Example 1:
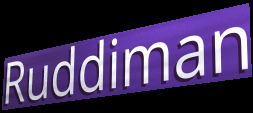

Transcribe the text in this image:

Ruddiman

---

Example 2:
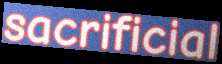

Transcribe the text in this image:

sacrificial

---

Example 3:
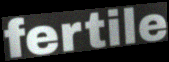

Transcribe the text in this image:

fertile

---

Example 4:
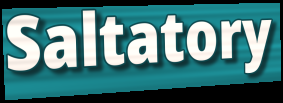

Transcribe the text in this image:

Saltatory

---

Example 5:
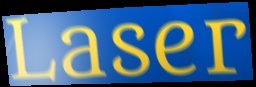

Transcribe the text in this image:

Laser